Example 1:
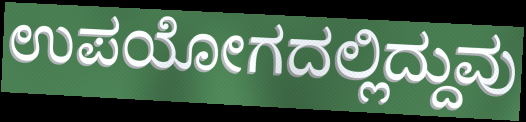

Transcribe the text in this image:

ಉಪಯೋಗದಲ್ಲಿದ್ದುವು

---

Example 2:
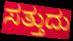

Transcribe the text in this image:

ಸತ್ತುದು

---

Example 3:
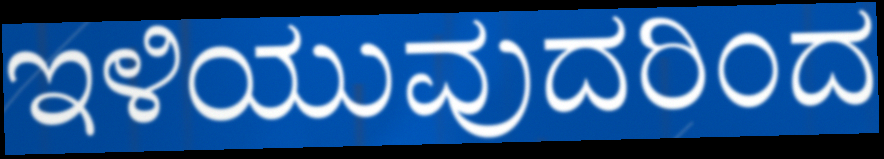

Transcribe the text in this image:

ಇಳಿಯುವುದರಿಂದ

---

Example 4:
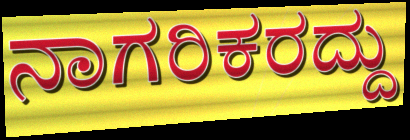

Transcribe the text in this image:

ನಾಗರಿಕರದ್ದು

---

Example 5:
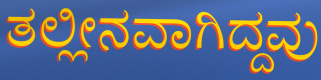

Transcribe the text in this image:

ತಲ್ಲೀನವಾಗಿದ್ದವು